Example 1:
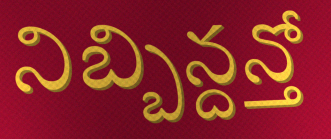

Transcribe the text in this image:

నిబ్బిన్దన్తో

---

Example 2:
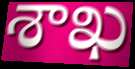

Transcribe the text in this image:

శాఖ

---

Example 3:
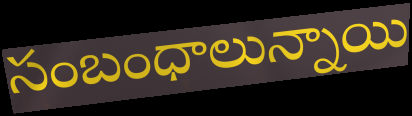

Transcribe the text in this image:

సంబంధాలున్నాయి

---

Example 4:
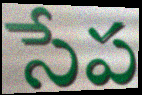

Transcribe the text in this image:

సేప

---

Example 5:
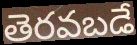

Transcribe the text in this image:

తెరవబడే